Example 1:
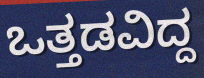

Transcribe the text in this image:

ಒತ್ತಡವಿದ್ದ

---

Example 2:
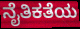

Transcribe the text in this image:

ನೈತಿಕತೆಯ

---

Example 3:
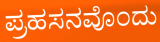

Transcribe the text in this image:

ಪ್ರಹಸನವೊಂದು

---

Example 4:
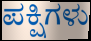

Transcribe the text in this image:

ಪಕ್ಷಿಗಳು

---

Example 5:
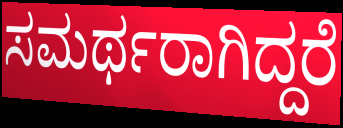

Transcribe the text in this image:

ಸಮರ್ಥರಾಗಿದ್ದರೆ